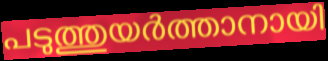
പടുത്തുയർത്താനായി